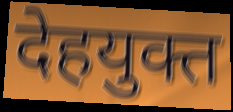
देहयुक्त